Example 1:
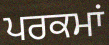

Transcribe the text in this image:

ਪਰਕਮਾਂ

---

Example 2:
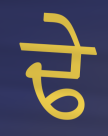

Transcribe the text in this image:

ਢੇ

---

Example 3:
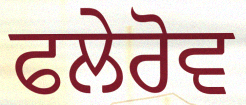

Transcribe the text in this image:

ਫਲੇਰੋਵ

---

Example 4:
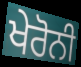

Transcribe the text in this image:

ਖੇਰੋਨੀ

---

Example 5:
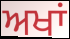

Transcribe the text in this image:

ਅਖਾਂ